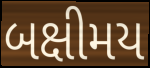
બક્ષીમય